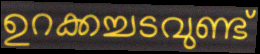
ഉറക്കച്ചടവുണ്ട്